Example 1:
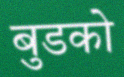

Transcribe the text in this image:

बुडको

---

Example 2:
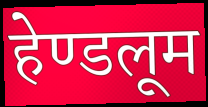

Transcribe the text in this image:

हेण्डलूम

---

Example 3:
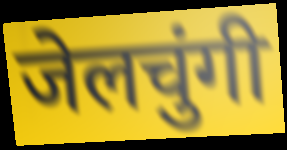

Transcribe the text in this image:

जेलचुंगी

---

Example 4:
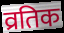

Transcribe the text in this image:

व्रतिक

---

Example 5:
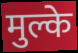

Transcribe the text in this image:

मुल्के